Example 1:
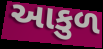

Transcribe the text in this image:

આકુળ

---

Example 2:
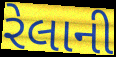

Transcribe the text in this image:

રેલાની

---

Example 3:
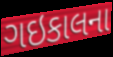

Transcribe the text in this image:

ગઇકાલના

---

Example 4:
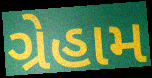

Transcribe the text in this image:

ગ્રેહામ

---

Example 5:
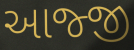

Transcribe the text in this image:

આજ્જી